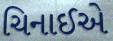
ચિનાઈએ